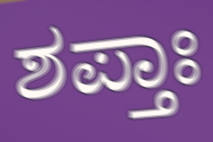
ಶಪ್ತಾಃ